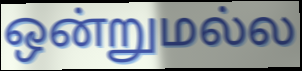
ஒன்றுமல்ல